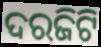
ଦରଜିଟି